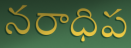
నరాధిప